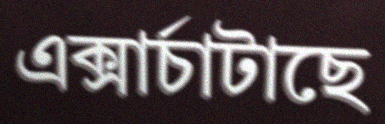
এক্সাৰ্চাটাছে